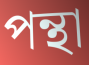
পন্থা